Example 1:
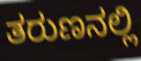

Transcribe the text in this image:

ತರುಣನಲ್ಲಿ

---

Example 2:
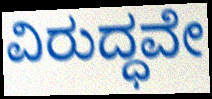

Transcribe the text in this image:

ವಿರುದ್ಧವೇ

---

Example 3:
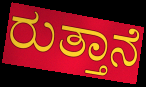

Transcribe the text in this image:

ರುತ್ತಾನೆ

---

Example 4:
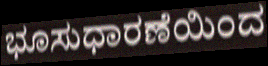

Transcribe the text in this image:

ಭೂಸುಧಾರಣೆಯಿಂದ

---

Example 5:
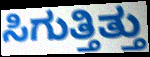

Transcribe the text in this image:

ಸಿಗುತ್ತಿತ್ತು